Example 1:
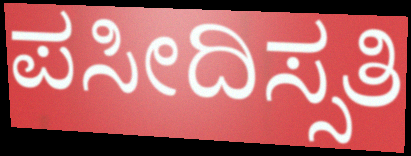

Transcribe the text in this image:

ಪಸೀದಿಸ್ಸತಿ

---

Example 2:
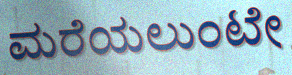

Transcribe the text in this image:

ಮರೆಯಲುಂಟೇ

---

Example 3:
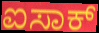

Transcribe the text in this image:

ಐಸಾಕ್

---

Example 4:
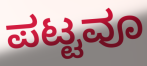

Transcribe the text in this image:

ಪಟ್ಟವೂ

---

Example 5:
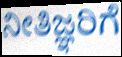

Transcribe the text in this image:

ನೀತಿಜ್ಞರಿಗೆ